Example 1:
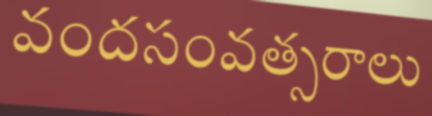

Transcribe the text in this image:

వందసంవత్సరాలు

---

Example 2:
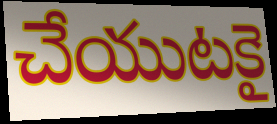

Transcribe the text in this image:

చేయుటకై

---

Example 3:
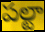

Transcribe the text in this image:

పల్టా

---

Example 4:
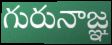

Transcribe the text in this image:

గురునాజ్ఞ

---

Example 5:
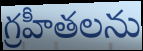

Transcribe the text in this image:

గ్రహీతలను